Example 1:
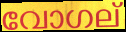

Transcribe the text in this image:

വോഗല്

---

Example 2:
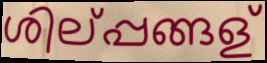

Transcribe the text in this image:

ശില്പ്പങ്ങള്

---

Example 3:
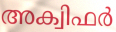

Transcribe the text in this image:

അക്വിഫർ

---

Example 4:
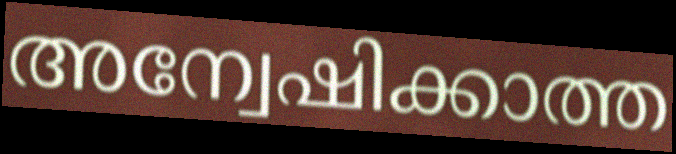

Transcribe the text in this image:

അന്വേഷിക്കാത്ത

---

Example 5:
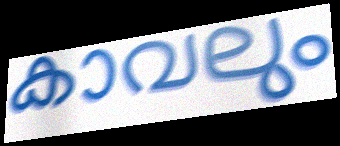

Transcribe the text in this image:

കാവലും